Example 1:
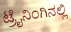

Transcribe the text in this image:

ಟ್ರೈನಿಂಗಿನಲ್ಲಿ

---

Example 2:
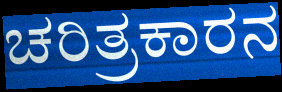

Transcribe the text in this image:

ಚರಿತ್ರಕಾರನ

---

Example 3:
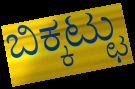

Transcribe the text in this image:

ಬಿಕ್ಕಟ್ಟು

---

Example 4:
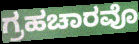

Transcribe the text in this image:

ಗ್ರಹಚಾರವೊ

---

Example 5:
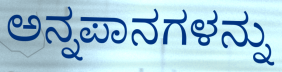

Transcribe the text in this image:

ಅನ್ನಪಾನಗಳನ್ನು